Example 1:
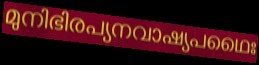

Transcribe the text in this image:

മുനിഭിരപ്യനവാഷ്യപഥൈഃ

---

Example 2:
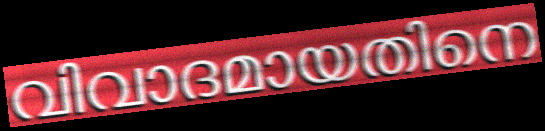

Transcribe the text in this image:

വിവാദമായതിനെ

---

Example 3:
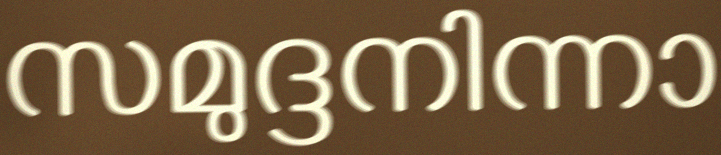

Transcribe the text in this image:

സമുദ്ദനിന്നാ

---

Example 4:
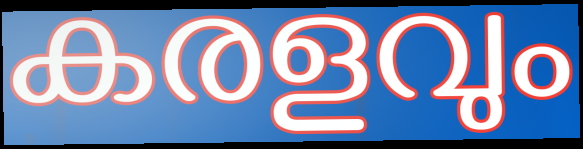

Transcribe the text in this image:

കരളവും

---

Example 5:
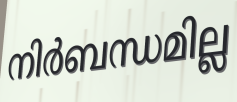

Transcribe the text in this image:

നിർബന്ധമില്ല